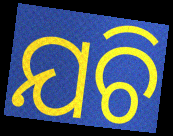
ଯଚି